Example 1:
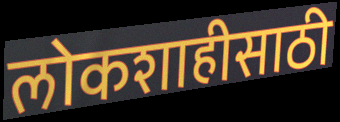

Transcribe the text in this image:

लोकशाहीसाठी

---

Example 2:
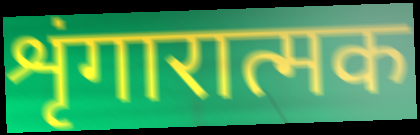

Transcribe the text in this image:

शृंगारात्मक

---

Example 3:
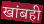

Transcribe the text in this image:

खांबही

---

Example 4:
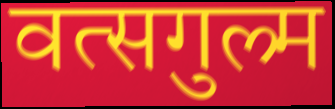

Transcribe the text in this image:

वत्सगुल्म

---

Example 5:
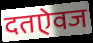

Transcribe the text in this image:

दतऐवज